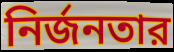
নির্জনতার